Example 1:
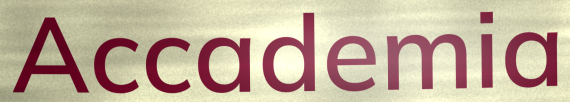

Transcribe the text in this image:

Accademia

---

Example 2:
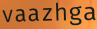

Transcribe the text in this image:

vaazhga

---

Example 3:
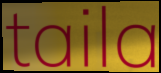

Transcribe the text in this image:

taila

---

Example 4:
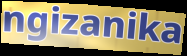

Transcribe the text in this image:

ngizanika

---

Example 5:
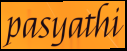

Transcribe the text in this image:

pasyathi